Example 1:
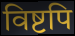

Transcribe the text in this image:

विष्टपि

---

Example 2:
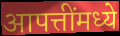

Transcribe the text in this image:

आपत्तींमध्ये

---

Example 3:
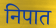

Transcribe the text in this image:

निपात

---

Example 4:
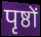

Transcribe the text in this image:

पृष्ठों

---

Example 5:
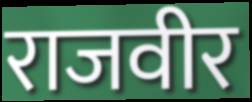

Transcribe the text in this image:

राजवीर